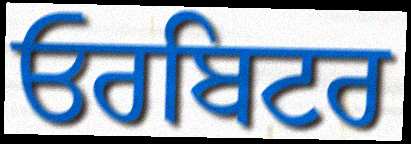
ਓਰਬਿਟਰ